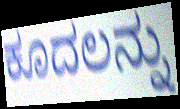
ಕೂದಲನ್ನು